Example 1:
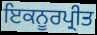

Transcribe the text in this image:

ਇਕਨੂਰਪ੍ਰੀਤ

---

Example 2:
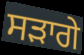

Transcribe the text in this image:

ਸੜਾਗੇ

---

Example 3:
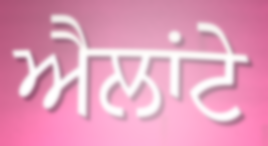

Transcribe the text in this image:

ਐਲਾਂਟੇ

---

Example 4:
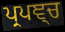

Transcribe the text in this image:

ਪ੍ਰਪਞ੍ਚ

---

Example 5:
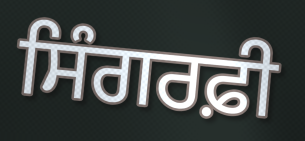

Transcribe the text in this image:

ਸਿੰਗਰਫ਼ੀ